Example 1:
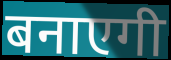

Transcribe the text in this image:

बनाएगी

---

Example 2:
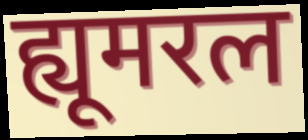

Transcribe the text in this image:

ह्यूमरल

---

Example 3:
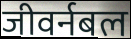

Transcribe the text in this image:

जीवर्नबल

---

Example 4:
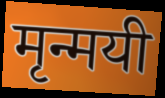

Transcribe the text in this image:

मृन्मयी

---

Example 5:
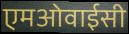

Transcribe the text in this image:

एमओवाईसी